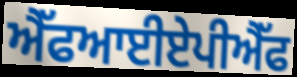
ਐੱਫਆਈਏਪੀਐੱਫ